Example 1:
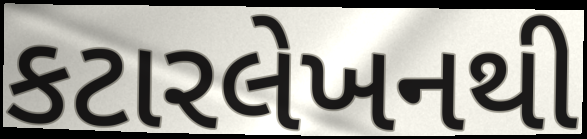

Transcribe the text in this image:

કટારલેખનથી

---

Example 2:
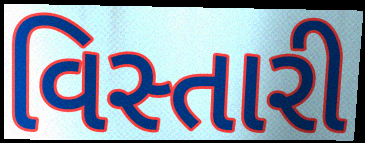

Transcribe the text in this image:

વિસ્તારી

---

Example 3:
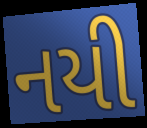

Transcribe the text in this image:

નયી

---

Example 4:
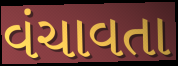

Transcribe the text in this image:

વંચાવતા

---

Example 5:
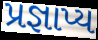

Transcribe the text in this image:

પ્રજ્ઞાપ્ય